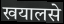
खयालसे